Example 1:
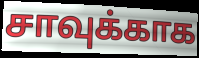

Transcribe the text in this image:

சாவுக்காக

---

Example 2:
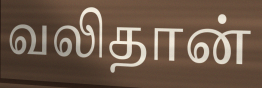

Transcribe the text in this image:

வலிதான்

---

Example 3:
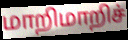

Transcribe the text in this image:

மாறிமாறிச்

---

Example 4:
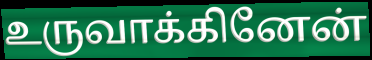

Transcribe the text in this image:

உருவாக்கினேன்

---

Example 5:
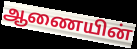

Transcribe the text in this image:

ஆணையின்